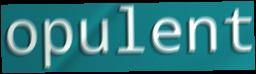
opulent